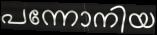
പന്നോനിയ